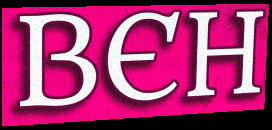
BEH